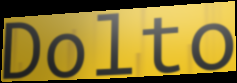
Dolto